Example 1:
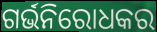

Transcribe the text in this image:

ଗର୍ଭନିରୋଧକର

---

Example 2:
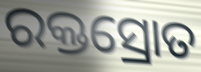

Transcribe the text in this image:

ରକ୍ତସ୍ରୋତ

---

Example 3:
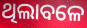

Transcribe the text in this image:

ଥିଲାବଳେ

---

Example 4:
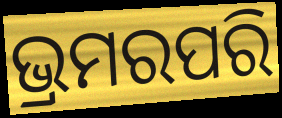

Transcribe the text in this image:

ଭ୍ରମରପରି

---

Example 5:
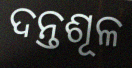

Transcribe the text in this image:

ଦନ୍ତଶୂଳ